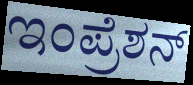
ಇಂಪ್ರೆಶನ್